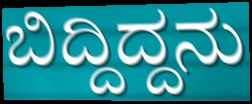
ಬಿದ್ದಿದ್ದನು